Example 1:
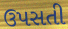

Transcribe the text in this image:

ઉપસતી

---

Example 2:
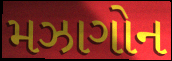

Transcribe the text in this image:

મઝાગોન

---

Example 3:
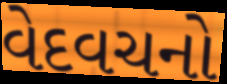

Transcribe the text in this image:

વેદવચનો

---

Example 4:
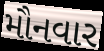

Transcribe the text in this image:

મૌનવાર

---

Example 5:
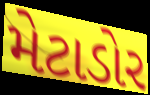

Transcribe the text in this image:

મેટાડોર